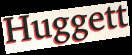
Huggett